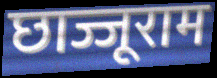
छाज्जूराम